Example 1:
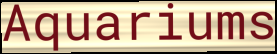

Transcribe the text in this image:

Aquariums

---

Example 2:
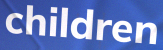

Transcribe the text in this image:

children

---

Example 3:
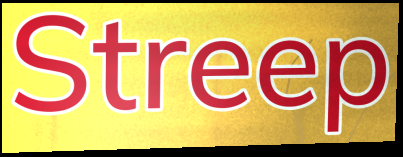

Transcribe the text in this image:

Streep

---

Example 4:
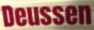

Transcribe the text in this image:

Deussen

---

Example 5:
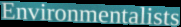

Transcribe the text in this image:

Environmentalists